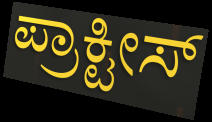
ಪ್ರಾಕ್ಟೀಸ್